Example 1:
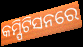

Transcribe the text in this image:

କମ୍ପିଟିସନରେ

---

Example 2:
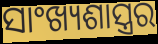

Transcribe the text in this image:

ସାଂଖ୍ୟଶାସ୍ତ୍ରର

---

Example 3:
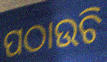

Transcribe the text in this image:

ପଠାଉଚି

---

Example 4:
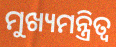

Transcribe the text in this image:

ମୁଖ୍ୟମନ୍ତ୍ରିତ୍ବ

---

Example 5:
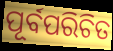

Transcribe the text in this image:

ପୂର୍ବପରିଚିତ